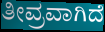
ತೀವ್ರವಾಗಿದೆ